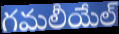
గమలీయేల్